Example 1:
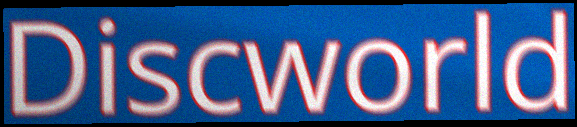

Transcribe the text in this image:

Discworld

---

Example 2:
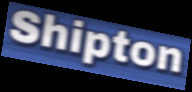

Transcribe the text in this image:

Shipton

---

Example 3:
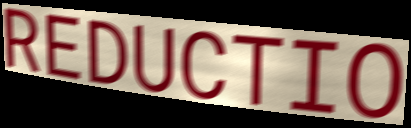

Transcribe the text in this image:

REDUCTIO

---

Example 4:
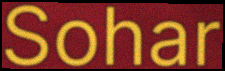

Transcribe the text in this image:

Sohar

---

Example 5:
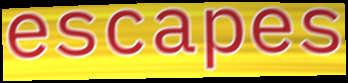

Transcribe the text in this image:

escapes